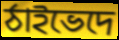
ঠাইভেদে